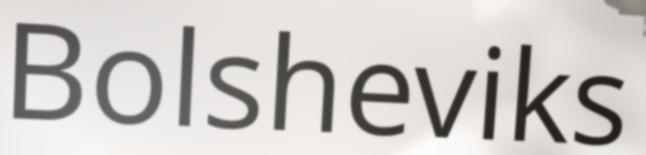
Bolsheviks